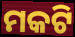
ମକଟି